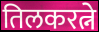
तिलकरत्ने